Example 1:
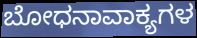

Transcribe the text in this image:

ಬೋಧನಾವಾಕ್ಯಗಳ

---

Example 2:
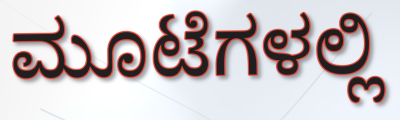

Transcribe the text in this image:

ಮೂಟೆಗಳಲ್ಲಿ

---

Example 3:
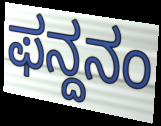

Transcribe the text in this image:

ಫನ್ದನಂ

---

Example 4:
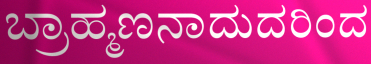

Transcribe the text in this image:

ಬ್ರಾಹ್ಮಣನಾದುದರಿಂದ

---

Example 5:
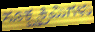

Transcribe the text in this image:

ಸೂಕ್ಷ್ಮಕ್ರಿಮಿಗಳು